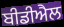
ਬੀਡੀਐਲ